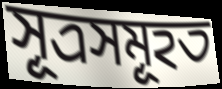
সূত্ৰসমূহত